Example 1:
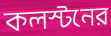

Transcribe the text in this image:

কলস্টনের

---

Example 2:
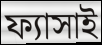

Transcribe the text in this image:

ফ্যাসাই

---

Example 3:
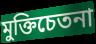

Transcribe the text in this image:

মুক্তিচেতনা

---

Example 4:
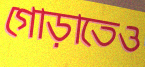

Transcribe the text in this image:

গোড়াতেও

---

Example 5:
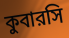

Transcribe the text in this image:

কুবারসি